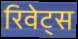
रिवेट्स